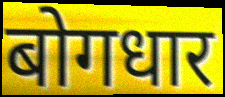
बोगधार